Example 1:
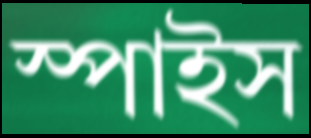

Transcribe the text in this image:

স্পাইস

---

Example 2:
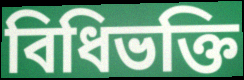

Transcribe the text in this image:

বিধিভক্তি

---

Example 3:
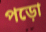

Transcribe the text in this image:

পড়ো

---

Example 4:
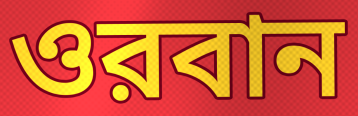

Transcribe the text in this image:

ওরবান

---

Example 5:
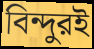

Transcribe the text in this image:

বিন্দুরই